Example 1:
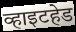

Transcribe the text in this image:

व्हाइटहेड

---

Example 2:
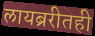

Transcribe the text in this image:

लायब्ररीतही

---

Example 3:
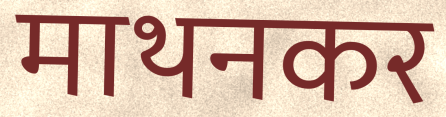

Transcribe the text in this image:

माथनकर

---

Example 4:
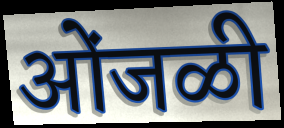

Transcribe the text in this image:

ओंजळी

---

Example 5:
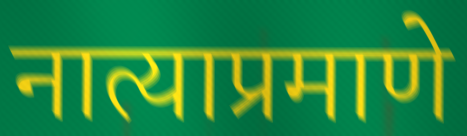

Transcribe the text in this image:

नात्याप्रमाणे